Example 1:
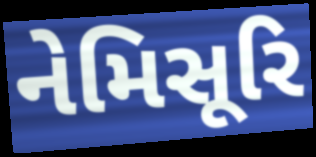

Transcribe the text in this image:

નેમિસૂરિ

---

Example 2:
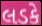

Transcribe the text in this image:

લડકે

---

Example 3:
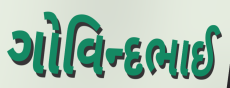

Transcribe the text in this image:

ગોવિન્દભાઈ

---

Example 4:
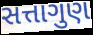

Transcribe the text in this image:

સત્તાગુણ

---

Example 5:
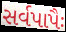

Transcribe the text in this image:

સર્વપાપૈઃ